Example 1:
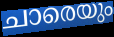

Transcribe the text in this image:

ചാരെയും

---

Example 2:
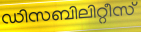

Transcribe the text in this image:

ഡിസബിലിറ്റീസ്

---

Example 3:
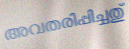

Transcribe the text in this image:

അവതരിപ്പിച്ചതു്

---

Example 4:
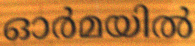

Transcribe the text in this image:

ഓർമയിൽ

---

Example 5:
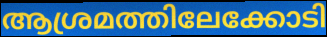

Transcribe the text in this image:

ആശ്രമത്തിലേക്കോടി